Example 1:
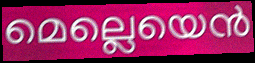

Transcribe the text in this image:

മെല്ലെയെൻ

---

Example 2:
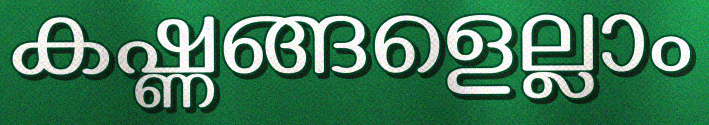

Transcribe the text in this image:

കഷ്ണങ്ങളെല്ലാം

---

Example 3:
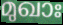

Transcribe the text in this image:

മുഖാഃ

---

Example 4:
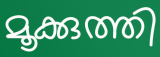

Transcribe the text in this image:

മൂക്കുത്തി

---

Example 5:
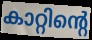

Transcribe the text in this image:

കാറ്റിന്റെ